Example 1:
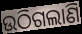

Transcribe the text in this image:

ଉଠିଗଲାଣି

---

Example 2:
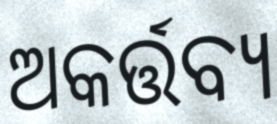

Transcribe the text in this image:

ଅକର୍ତ୍ତବ୍ୟ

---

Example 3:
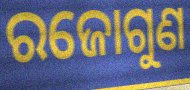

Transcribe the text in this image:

ରଜୋଗୁଣ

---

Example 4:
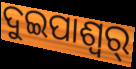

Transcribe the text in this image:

ଦୁଇପାଶ୍ୱର୍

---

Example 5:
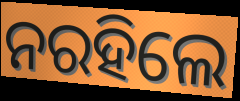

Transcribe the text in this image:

ନରହିଲେ